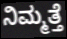
ನಿಮ್ಮತ್ತೆ